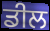
ਡੀਲ